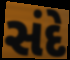
સંદે